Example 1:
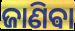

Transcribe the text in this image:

ଜାଣିଵା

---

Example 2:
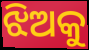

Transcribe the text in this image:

ଝିଅକୁ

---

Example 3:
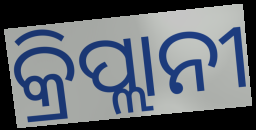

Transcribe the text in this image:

କ୍ରିପ୍ଲାନୀ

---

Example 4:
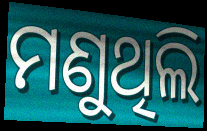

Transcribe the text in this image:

ମଣୁଥିଲି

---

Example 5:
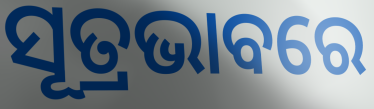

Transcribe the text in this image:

ସୂତ୍ରଭାବରେ